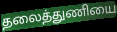
தலைத்துணியை